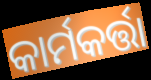
କାର୍ମକର୍ତ୍ତା